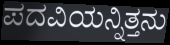
ಪದವಿಯನ್ನಿತ್ತನು